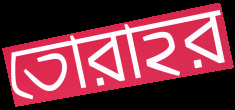
তোরাহর